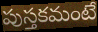
పుస్తకమంటే